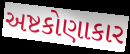
અષ્ટકોણાકાર